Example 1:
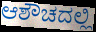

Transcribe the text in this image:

ಆಶೌಚದಲ್ಲಿ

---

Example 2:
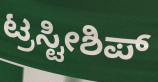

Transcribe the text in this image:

ಟ್ರಸ್ಟೀಶಿಪ್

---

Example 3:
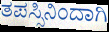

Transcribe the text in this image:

ತಪಸ್ಸಿನಿಂದಾಗಿ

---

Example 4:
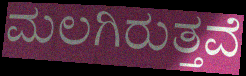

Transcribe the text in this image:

ಮಲಗಿರುತ್ತವೆ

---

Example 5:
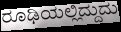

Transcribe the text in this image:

ರೂಢಿಯಲ್ಲಿದ್ದುದು